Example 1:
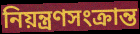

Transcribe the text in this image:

নিয়ন্ত্রণসংক্রান্ত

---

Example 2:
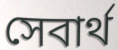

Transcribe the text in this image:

সেবার্থ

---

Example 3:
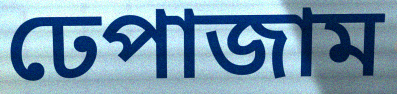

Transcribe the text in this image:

ঢেপাজাম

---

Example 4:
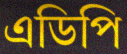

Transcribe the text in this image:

এডিপি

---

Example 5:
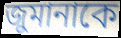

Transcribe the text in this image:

জুমানাকে